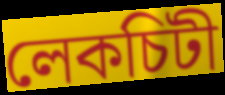
লেকচিটী